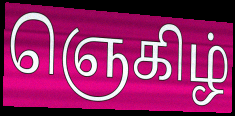
ஞெகிழ்